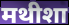
मथीशा